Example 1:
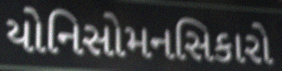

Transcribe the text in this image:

યોનિસોમનસિકારો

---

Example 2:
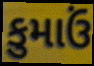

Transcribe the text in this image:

કુમાઉં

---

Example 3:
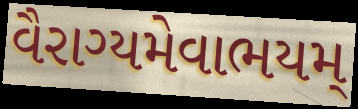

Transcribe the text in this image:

વૈરાગ્યમેવાભયમ્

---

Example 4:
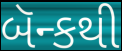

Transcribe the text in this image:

બૅન્કથી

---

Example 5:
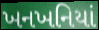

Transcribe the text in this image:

ખનખનિયાં